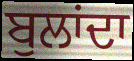
ਬੁਲਾਂਦਾ